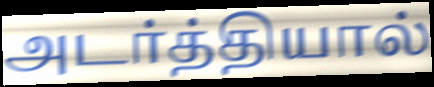
அடர்த்தியால்